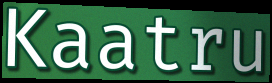
Kaatru